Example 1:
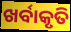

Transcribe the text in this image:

ଖର୍ବାକୃତି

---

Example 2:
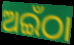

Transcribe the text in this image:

ଅଇଁଠା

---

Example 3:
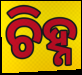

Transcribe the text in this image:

ଚିହ୍ନ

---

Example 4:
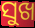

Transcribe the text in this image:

ସୁଖ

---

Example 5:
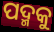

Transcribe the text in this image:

ପଦ୍ମକୁ